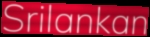
Srilankan